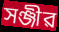
সঞ্জীৱ